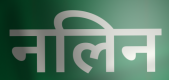
नलिन